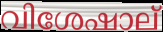
വിശേഷാല്